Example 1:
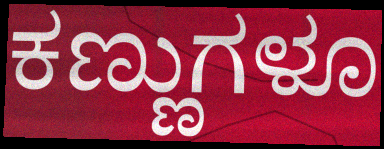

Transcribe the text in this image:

ಕಣ್ಣುಗಳೂ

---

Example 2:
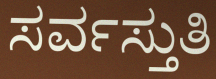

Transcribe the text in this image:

ಸರ್ವಸ್ತುತಿ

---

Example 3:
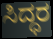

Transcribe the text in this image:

ಸಿದ್ಧರ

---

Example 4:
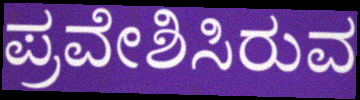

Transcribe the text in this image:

ಪ್ರವೇಶಿಸಿರುವ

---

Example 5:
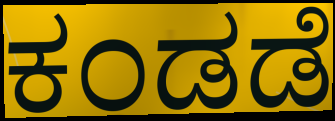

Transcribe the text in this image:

ಕಂಡಡೆ